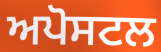
ਅਪੋਸਟਲ